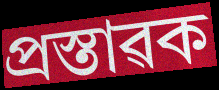
প্ৰস্তাৱক